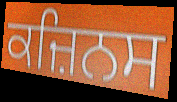
ਕਜ਼ਿਨਸ